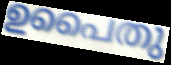
ഉപൈതു